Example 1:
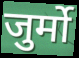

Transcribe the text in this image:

जुर्मो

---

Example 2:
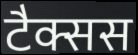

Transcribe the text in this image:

टैक्सस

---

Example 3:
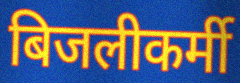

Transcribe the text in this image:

बिजलीकर्मी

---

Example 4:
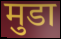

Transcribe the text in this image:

मुडा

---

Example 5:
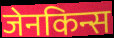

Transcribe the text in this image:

जेनकिन्स